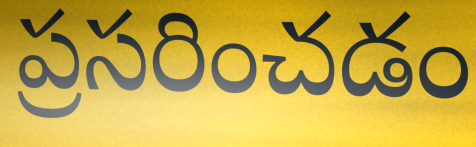
ప్రసరించడం